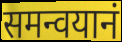
समन्वयानं